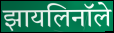
झायलिनॉले